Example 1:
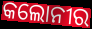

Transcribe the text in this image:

କଲୋନୀର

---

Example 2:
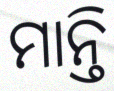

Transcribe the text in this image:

ମାନ୍ତି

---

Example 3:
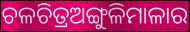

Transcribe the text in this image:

ଚଳଚିତ୍ରଅଙ୍ଗୁଳିମାଳାର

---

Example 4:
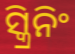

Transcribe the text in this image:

ସ୍କ୍ରିନିଂ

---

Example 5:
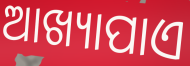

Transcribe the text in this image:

ଆଖ୍ୟାପାଏ